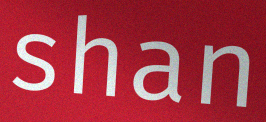
shan